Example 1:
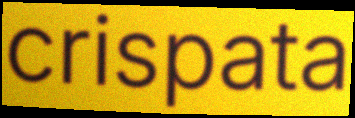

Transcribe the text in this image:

crispata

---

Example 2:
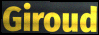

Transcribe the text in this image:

Giroud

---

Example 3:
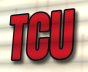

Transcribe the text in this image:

TCU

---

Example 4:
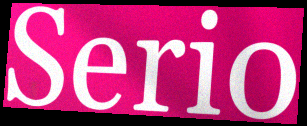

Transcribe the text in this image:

Serio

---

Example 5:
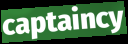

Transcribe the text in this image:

captaincy